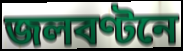
জলবণ্টনে